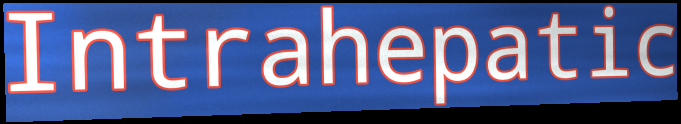
Intrahepatic